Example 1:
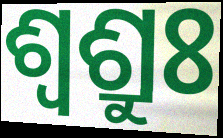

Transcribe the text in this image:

ଶ୍ଵଶ୍ରୁଃ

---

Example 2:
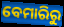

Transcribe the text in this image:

ବେମାରିରୁ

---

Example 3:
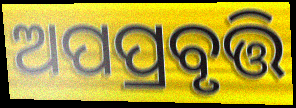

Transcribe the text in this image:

ଅପପ୍ରବୃତ୍ତି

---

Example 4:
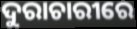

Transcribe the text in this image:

ଦୁରାଚାରୀରେ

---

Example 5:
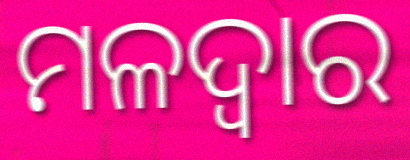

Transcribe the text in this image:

ମଳଦ୍ଵାର